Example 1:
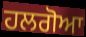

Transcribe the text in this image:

ਹਲਗੋਆ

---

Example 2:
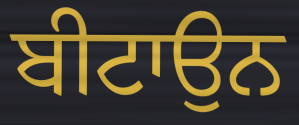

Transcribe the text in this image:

ਬੀਟਾਉਨ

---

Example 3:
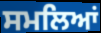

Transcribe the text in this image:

ਸਮਲਿਆਂ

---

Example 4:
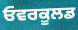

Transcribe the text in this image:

ਓਵਰਕੂਲਡ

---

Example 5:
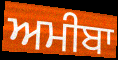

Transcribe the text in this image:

ਅਮੀਬਾ